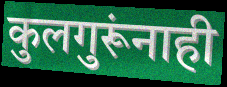
कुलगुरूंनाही